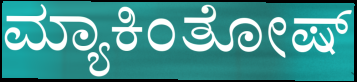
ಮ್ಯಾಕಿಂತೋಷ್